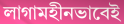
লাগামহীনভাবেই